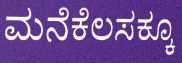
ಮನೆಕೆಲಸಕ್ಕೂ